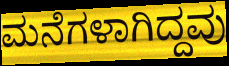
ಮನೆಗಳಾಗಿದ್ದವು